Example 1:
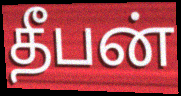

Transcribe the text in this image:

தீபன்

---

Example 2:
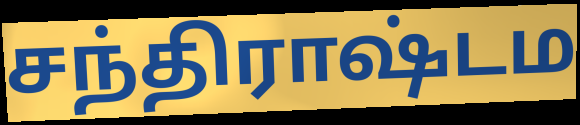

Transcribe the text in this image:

சந்திராஷ்டம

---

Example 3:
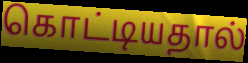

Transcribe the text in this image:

கொட்டியதால்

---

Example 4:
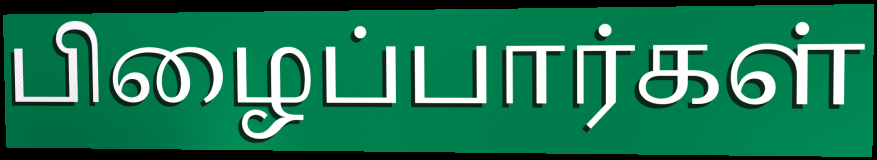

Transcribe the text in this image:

பிழைப்பார்கள்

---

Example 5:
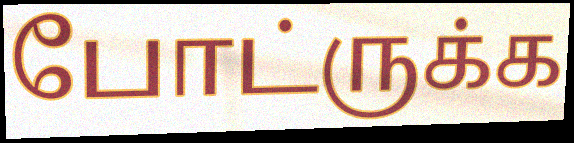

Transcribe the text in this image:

போட்ருக்க